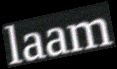
laam